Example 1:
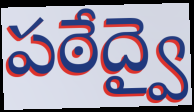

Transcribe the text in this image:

పఠేద్వై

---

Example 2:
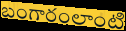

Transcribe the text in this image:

బంగారంలాంటి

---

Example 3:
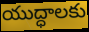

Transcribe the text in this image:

యుద్ధాలకు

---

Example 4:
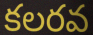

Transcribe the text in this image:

కలరవ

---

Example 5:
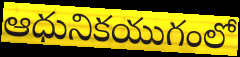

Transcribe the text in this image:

ఆధునికయుగంలో